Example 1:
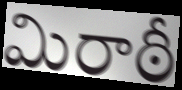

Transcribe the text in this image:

మిరాఠీ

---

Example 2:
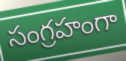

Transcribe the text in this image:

సంగ్రహంగా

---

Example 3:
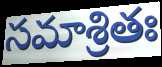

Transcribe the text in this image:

సమాశ్రితః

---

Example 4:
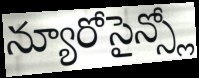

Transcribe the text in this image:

న్యూరోసైన్స్లో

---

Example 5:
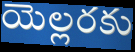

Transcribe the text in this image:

యెల్లరకు